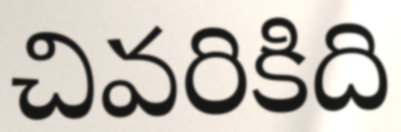
చివరికిది